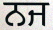
ਨਜ